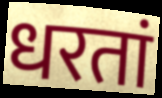
धरतां